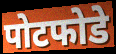
पोटफोडे